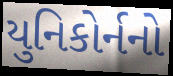
યુનિકોર્નનો